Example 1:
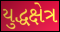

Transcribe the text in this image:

યુદ્ધક્ષેત્ર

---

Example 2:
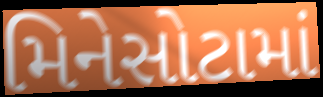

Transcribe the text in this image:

મિનેસોટામાં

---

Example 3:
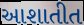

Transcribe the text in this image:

આશાતીત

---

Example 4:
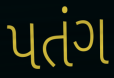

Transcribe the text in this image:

પતંગ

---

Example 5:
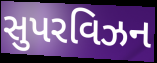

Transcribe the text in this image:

સુપરવિઝન